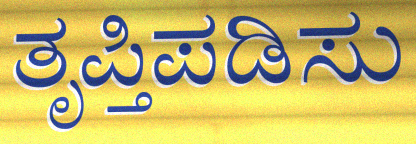
ತೃಪ್ತಿಪಡಿಸು